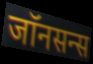
जॉनसन्स